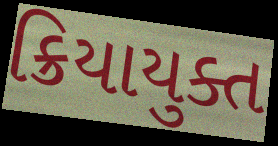
ક્રિયાયુક્ત